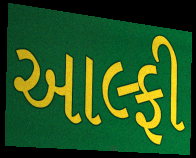
આલ્ફી